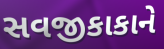
સવજીકાકાને